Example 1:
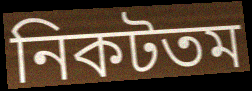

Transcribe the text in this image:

নিকটতম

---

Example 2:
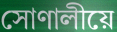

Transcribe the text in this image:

সোণালীয়ে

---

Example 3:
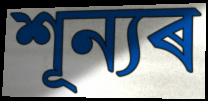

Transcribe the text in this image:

শূন্যৰ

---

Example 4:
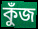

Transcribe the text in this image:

কুঁজ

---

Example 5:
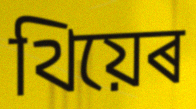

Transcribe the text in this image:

থিয়েৰ